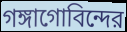
গঙ্গাগোবিন্দের